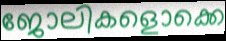
ജോലികളൊക്കെ